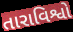
તારાવિશ્વો